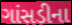
ગાંસડીના